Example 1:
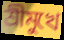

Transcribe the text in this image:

শ্রীমুখে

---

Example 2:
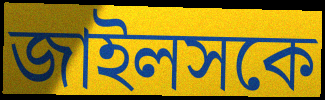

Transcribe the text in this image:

জাইলসকে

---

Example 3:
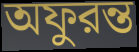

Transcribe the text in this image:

অফুরন্ত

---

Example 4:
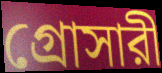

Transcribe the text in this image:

গ্রোসারী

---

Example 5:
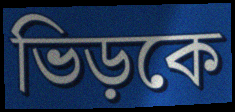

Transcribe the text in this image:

ভিড়কে